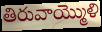
తిరువాయ్మొళి